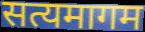
सत्यमागम